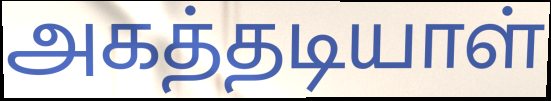
அகத்தடியாள்